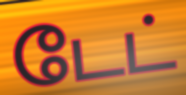
டேட்